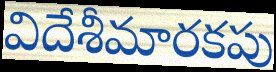
విదేశీమారకపు